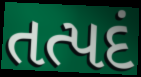
તત્પદં